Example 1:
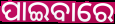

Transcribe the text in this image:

ପାଇବାରେ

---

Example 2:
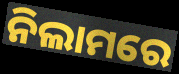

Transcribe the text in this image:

ନିଲାମରେ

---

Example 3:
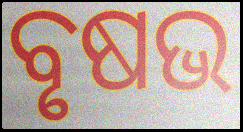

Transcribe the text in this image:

ବୃଷଭ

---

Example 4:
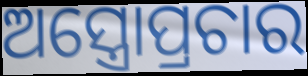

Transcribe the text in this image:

ଅସ୍ତ୍ରୋପ୍ରଚାର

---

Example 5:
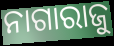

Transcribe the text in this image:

ନାଗାରାଜୁ